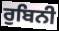
ਰੁਬਿਨੀ